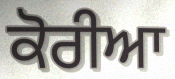
ਕੋਰੀਆ